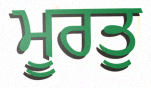
ਮੂਰਤੁ